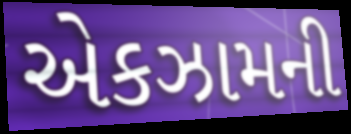
એકઝામની